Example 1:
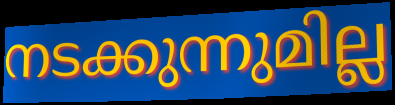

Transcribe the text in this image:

നടക്കുന്നുമില്ല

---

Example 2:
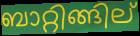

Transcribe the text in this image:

ബാറ്റിങ്ങില്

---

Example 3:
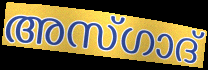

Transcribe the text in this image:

അസ്ഗാദ്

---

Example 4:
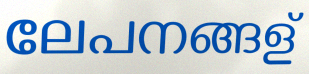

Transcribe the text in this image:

ലേപനങ്ങള്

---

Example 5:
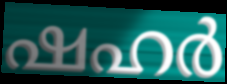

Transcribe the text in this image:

ഷഹർ